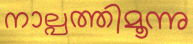
നാല്പത്തിമൂന്നു